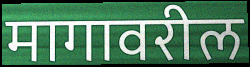
मागावरील